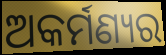
ଅକର୍ମଣ୍ୟର